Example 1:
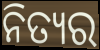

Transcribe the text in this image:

ନିତ୍ୟର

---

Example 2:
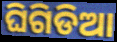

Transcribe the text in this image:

ଘିଗିଡିଆ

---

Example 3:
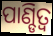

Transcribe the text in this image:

ପାଣ୍ଡିତ୍ୱ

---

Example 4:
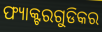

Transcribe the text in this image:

ଫ୍ୟାକ୍ଟରଗୁଡିକର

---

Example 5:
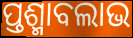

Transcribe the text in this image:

ପ୍ତଶ୍ମାବଲାଭ